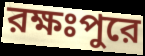
রক্ষঃপুরে